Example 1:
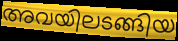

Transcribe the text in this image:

അവയിലടങ്ങിയ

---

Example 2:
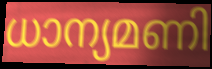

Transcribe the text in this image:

ധാന്യമണി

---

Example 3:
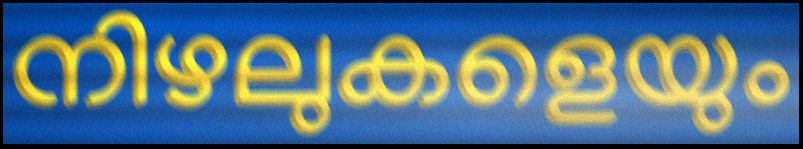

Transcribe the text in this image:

നിഴലുകളെയും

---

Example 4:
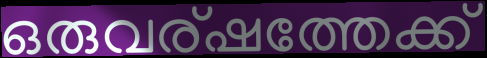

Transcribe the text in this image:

ഒരുവര്ഷത്തേക്ക്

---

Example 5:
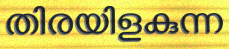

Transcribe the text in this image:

തിരയിളകുന്ന